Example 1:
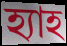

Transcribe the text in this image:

হ্যাহ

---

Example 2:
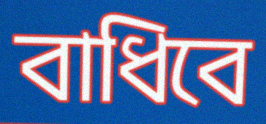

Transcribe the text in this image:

বাধিবে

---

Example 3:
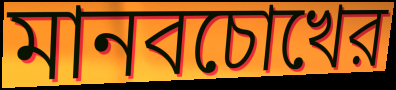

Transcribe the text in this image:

মানবচোখের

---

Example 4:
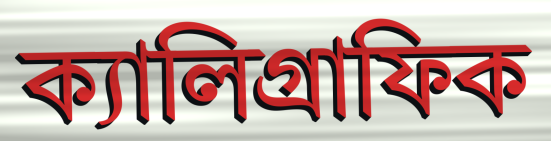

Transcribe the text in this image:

ক্যালিগ্রাফিক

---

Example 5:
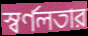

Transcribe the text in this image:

স্বর্ণলতার